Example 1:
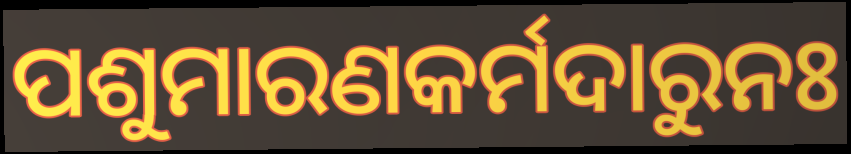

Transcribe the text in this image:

ପଶୁମାରଣକର୍ମଦାରୁନଃ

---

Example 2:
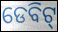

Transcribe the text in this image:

ଡେବିଟ୍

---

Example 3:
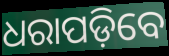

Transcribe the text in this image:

ଧରାପଡ଼ିବେ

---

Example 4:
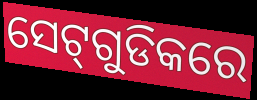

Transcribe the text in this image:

ସେଟ୍‌ଗୁଡିକରେ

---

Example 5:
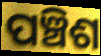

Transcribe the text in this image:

ପଞ୍ଚିଶ